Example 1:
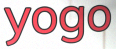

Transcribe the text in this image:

yogo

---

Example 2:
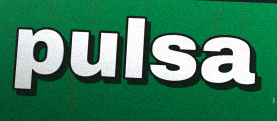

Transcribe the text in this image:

pulsa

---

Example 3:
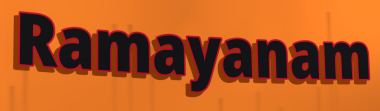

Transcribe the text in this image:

Ramayanam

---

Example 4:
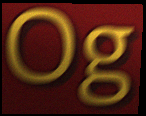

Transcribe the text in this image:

Og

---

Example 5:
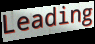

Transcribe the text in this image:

Leading